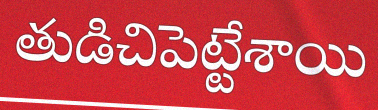
తుడిచిపెట్టేశాయి